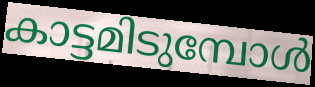
കാട്ടമിടുമ്പോൾ